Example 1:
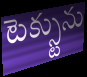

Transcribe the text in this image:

టెక్స్టును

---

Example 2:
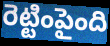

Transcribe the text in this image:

రెట్టింపైంది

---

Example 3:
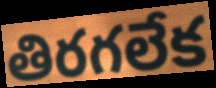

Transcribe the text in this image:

తిరగలేక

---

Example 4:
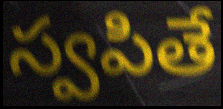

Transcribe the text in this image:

స్వపితే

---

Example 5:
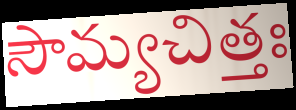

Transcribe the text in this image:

సౌమ్యచిత్తః